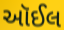
આૅઈલ